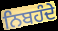
ਨਿਬਹੰਦੇ